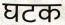
घटक